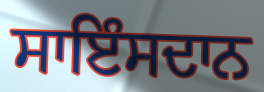
ਸਾਇੰਸਦਾਨ